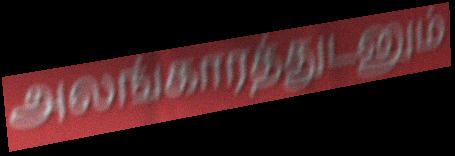
அலங்காரத்துடனும்